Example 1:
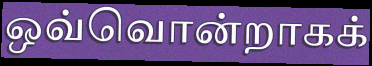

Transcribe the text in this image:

ஒவ்வொன்றாகக்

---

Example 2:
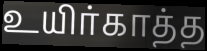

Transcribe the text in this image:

உயிர்காத்த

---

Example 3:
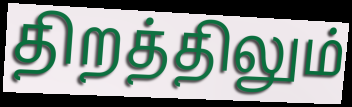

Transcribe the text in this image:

திறத்திலும்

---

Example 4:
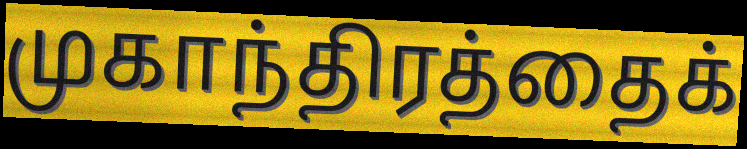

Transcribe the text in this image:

முகாந்திரத்தைக்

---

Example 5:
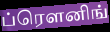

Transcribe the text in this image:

ப்ரௌனிங்